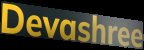
Devashree